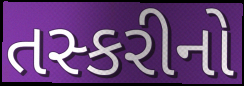
તસ્કરીનો